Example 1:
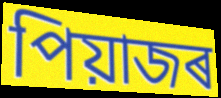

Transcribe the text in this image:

পিয়াজৰ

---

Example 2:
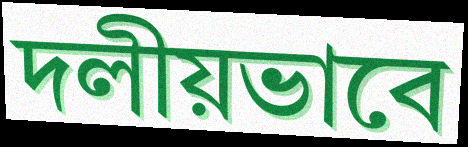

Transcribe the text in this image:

দলীয়ভাবে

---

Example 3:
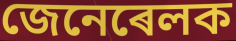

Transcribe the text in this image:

জেনেৰেলক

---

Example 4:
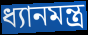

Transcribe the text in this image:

ধ্যানমন্ত্ৰ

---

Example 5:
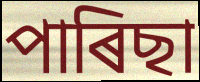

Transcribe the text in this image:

পাৰিছা